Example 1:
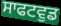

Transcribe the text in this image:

ਸਾਫਟਵੁਡ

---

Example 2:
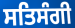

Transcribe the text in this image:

ਸਤਿਸੰਗੀ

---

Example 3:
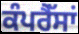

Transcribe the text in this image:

ਕੰਪਰੈੱਸਾਂ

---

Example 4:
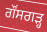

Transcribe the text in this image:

ਗੌਂਸਗੜ੍ਹ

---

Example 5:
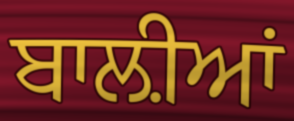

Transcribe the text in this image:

ਬਾਲ਼ੀਆਂ